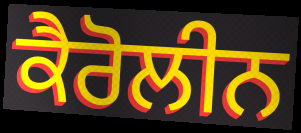
ਕੈਰੋਲੀਨ